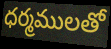
ధర్మములతో